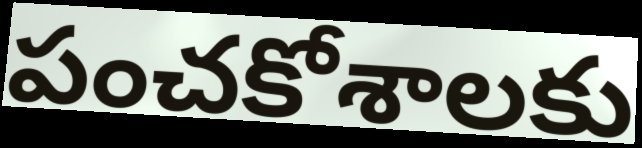
పంచకోశాలకు